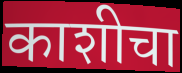
काशीचा